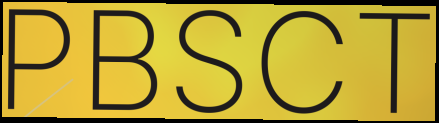
PBSCT